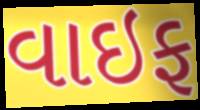
વાઇફ